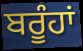
ਬਰੂੰਹਾਂ